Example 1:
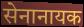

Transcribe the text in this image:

सेनानायक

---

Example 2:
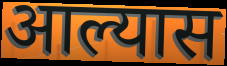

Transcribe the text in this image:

आल्यास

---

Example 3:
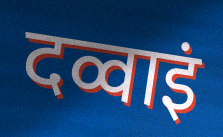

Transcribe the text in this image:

दव्वाइं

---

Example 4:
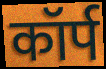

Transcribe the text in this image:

कॉर्प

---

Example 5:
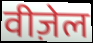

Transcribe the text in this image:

वीज़ेल